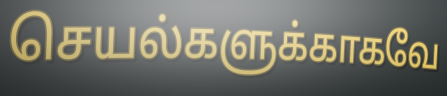
செயல்களுக்காகவே